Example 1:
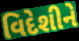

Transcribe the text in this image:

વિદેશીને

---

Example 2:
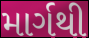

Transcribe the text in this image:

માર્ગથી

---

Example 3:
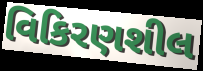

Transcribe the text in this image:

વિકિરણશીલ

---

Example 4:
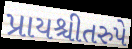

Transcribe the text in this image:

પ્રાયશ્ચીતરુપે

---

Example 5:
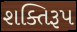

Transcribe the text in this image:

શક્તિરૂપ